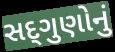
સદ્‌ગુણોનું